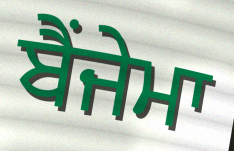
ਬੈਂਜੇਮਾ